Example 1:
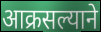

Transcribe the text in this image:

आक्रसल्याने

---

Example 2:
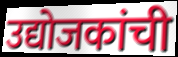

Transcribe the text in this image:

उद्योजकांची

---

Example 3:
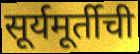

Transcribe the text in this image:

सूर्यमूर्तीची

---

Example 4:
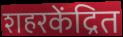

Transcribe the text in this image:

शहरकेंद्रित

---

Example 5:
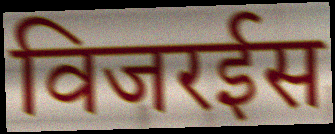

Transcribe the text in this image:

विजरईस